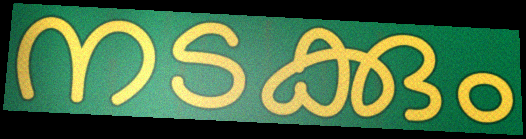
നടക്കും